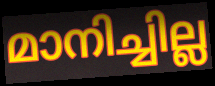
മാനിച്ചില്ല